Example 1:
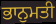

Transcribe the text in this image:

ਭਾਨੁਮਤੀ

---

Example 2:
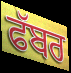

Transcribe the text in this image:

ਫੱਬਰ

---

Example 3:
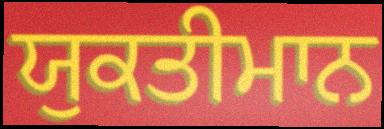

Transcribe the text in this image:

ਯੁਕਤੀਮਾਨ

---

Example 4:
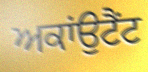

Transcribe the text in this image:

ਅਕਾਂਉਟੈਂਟ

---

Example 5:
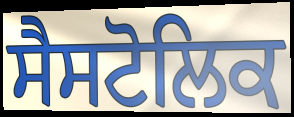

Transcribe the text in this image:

ਸੈਸਟੋਲਿਕ